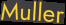
Muller